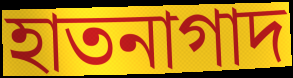
হাতনাগাদ